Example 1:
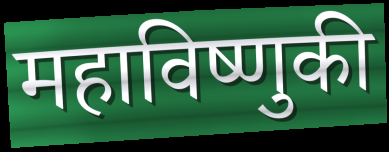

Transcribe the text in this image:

महाविष्णुकी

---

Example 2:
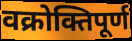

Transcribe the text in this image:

वक्रोक्तिपूर्ण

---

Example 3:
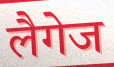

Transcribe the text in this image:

लैगेज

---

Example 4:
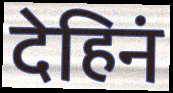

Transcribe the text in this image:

देहिनं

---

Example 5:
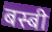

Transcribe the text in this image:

बस्बी